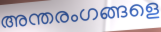
അന്തരംഗങ്ങളെ